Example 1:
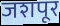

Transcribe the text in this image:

जशपूर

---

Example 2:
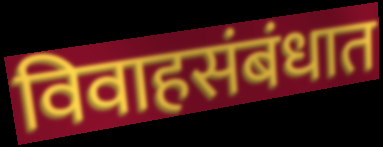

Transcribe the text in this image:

विवाहसंबंधात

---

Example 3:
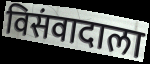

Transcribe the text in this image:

विसंवादाला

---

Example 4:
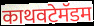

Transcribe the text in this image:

काथवटेमॅडम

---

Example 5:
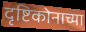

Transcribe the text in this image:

दृष्टिकोनाच्या